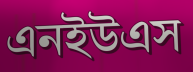
এনইউএস